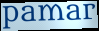
pamar